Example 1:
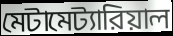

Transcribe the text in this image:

মেটামেট্যারিয়াল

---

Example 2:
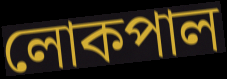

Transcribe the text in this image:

লোকপাল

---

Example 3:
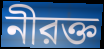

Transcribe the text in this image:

নীরক্ত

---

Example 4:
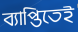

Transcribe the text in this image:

ব্যাপ্তিতেই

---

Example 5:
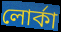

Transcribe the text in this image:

লোর্কা